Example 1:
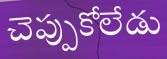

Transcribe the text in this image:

చెప్పుకోలేడు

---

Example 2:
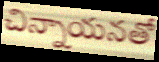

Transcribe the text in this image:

చిన్నాయనతో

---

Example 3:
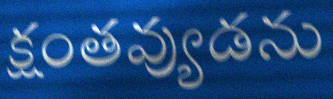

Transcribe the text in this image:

క్షంతవ్యుడను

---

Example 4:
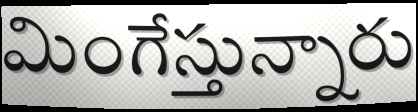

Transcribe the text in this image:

మింగేస్తున్నారు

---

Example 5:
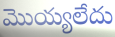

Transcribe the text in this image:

మొయ్యలేదు